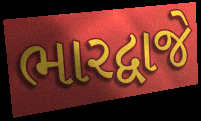
ભારદ્વાજે